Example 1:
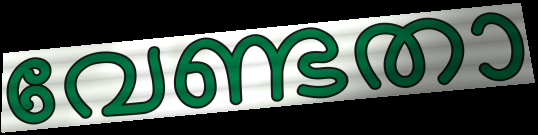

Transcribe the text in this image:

വേണ്ടതാ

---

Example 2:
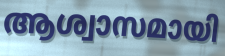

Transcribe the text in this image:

ആശ്വാസമായി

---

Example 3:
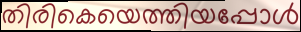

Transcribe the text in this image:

തിരികെയെത്തിയപ്പോൾ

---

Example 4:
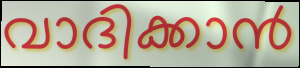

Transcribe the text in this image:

വാദിക്കാൻ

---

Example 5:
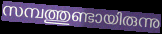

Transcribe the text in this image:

സമ്പത്തുണ്ടായിരുന്നു